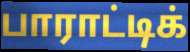
பாராட்டிக்